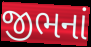
જીભનાં